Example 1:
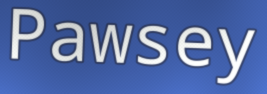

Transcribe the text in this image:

Pawsey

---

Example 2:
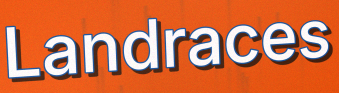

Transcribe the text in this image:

Landraces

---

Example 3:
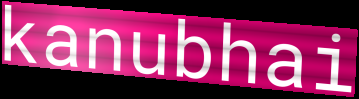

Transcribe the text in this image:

kanubhai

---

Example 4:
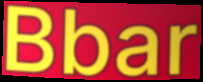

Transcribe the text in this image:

Bbar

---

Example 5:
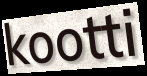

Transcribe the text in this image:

kootti